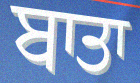
ਬਾਤਾ